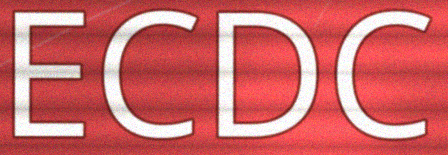
ECDC